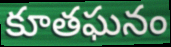
కూతఘనం